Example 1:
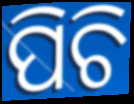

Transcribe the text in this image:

ପିଚି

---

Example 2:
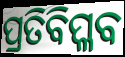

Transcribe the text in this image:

ପ୍ରତିବିପ୍ଳବ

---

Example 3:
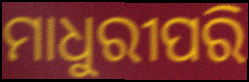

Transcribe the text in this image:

ମାଧୁରୀପରି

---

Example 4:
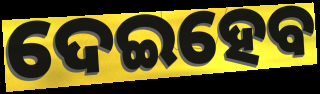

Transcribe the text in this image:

ଦେଇହେବ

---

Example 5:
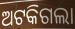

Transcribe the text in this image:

ଅଟକିଗଲା